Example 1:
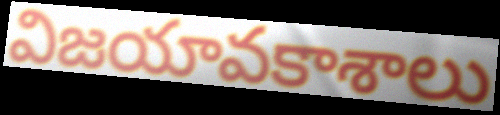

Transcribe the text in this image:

విజయావకాశాలు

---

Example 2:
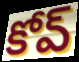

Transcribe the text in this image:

కోవ్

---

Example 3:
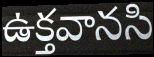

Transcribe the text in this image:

ఉక్తవానసి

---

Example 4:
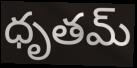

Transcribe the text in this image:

ధృతమ్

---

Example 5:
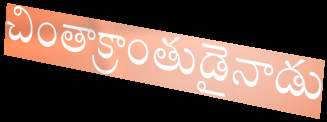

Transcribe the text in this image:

చింతాక్రాంతుడైనాడు